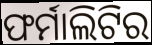
ଫର୍ମାଲିଟିର